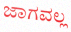
ಜಾಗವಲ್ಲ